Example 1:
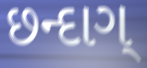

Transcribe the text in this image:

છન્દાગ્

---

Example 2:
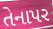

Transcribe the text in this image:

તેનાપર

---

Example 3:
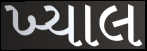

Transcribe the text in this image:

ખ્યાલ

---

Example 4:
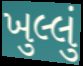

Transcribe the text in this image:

ખુલ્લું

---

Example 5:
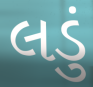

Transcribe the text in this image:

લડું